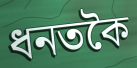
ধনতকৈ